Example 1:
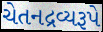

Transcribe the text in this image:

ચેતનદ્રવ્યરૂપે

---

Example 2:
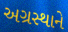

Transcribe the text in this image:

અગ્રસ્થાને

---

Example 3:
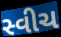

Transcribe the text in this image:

સ્વીચ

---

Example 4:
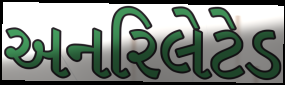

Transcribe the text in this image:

અનરિલેટેડ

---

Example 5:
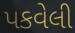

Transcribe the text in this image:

પકવેલી